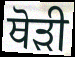
ਥੋੜੀ